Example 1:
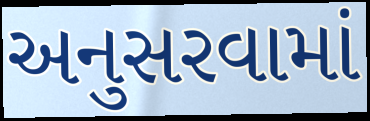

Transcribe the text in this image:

અનુસરવામાં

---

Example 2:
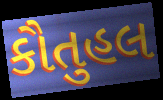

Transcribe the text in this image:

કૌતુહલ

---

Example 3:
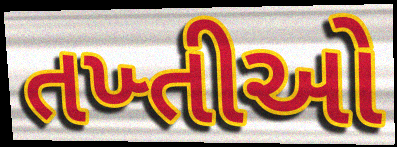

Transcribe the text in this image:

તખ્તીઓ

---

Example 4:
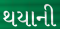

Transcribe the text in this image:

થયાની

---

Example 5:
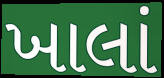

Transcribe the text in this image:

ખાલાં